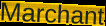
Marchant